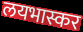
लयभास्कर